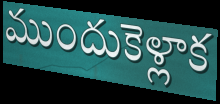
ముందుకెళ్లాక